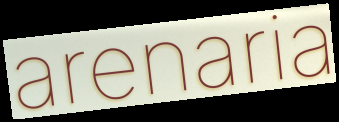
arenaria